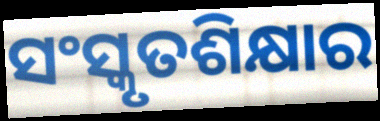
ସଂସ୍କୃତଶିକ୍ଷାର